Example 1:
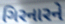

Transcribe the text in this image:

ગિરનારને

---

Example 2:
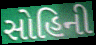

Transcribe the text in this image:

સોહિની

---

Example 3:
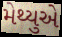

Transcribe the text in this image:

મેથ્યુએ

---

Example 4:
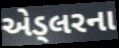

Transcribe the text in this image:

એડ્લરના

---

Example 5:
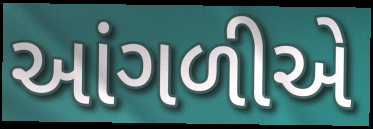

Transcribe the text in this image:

આંગળીએ